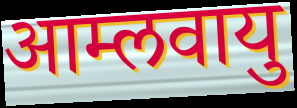
आम्लवायु